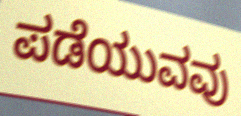
ಪಡೆಯುವವು